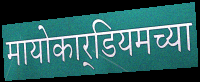
मायोकार्डियमच्या